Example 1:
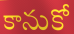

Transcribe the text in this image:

కానుకో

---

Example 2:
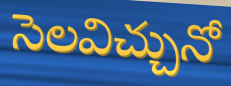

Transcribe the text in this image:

సెలవిచ్చునో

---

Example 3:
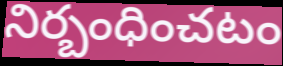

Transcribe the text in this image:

నిర్బంధించటం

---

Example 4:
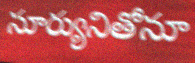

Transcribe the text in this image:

సూర్యునితోనూ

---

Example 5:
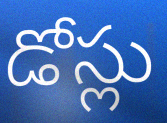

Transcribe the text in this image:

డోస్లు